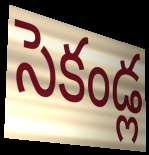
సెకండ్ల